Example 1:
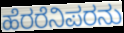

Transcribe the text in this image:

ಹೆರರೆನಿಪರನು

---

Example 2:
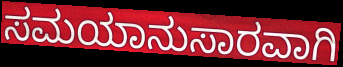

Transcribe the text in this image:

ಸಮಯಾನುಸಾರವಾಗಿ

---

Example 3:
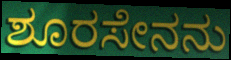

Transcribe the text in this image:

ಶೂರಸೇನನು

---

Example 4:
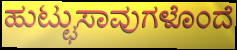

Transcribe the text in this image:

ಹುಟ್ಟುಸಾವುಗಳೊಂದೆ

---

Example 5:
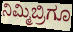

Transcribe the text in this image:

ನಿಮ್ಮಿಬ್ರಿಗೂ